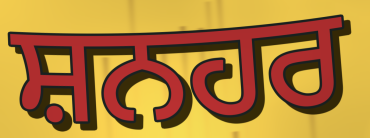
ਸ਼ਨਹਰ